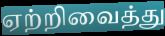
ஏற்றிவைத்து